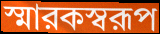
স্মারকস্বরূপ